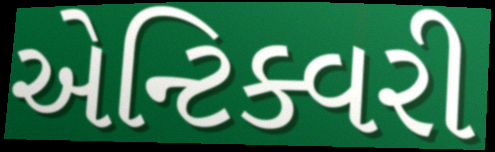
એન્ટિક્વરી